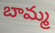
బామ్మ